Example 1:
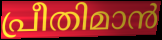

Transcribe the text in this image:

പ്രീതിമാൻ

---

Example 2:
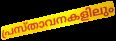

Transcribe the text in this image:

പ്രസ്താവനകളിലും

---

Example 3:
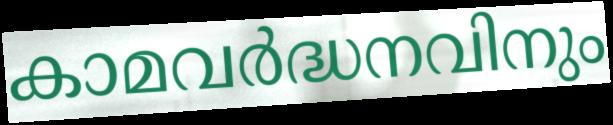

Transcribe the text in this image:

കാമവർദ്ധനവിനും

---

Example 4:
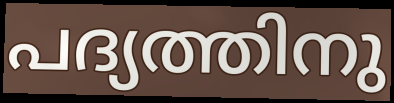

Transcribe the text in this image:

പദ്യത്തിനു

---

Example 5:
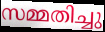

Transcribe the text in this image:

സമ്മതിച്ചു